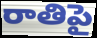
రాతిపై